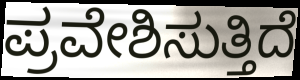
ಪ್ರವೇಶಿಸುತ್ತಿದೆ